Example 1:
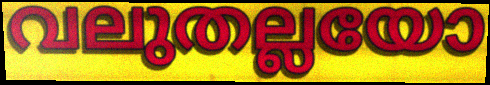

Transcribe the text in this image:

വലുതല്ലയോ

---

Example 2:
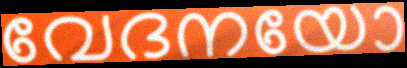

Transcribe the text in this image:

വേദനയോ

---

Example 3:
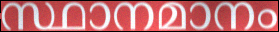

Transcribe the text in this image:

സ്ഥാനമാനം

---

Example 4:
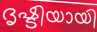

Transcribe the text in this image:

ദൃഷ്ടിയായി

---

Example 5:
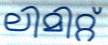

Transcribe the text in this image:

ലിമിറ്റ്